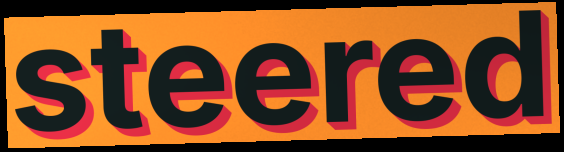
steered